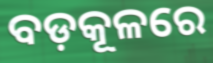
ବଡ଼କୂଳରେ